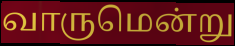
வாருமென்று